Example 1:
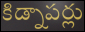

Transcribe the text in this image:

కిడ్నాపర్లు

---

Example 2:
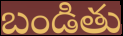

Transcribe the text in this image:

బండితు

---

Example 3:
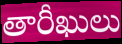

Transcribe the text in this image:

తారీఖులు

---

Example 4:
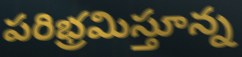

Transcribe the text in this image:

పరిభ్రమిస్తూన్న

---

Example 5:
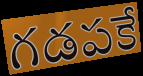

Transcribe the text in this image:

గడపకే